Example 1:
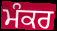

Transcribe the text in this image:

ਮੰਕਰ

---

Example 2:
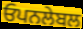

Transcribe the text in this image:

ਓਪਨਲੇਬਲ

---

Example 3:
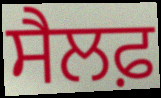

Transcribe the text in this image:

ਸੈਲਫ਼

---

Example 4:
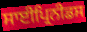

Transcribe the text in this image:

ਸਾਈਪ੍ਰਿਨੀਡਸ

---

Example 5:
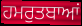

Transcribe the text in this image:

ਹਮਰੁਤਬਾਆਂ